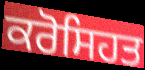
ਕਰੋਸਿਹਤ